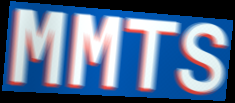
MMTS